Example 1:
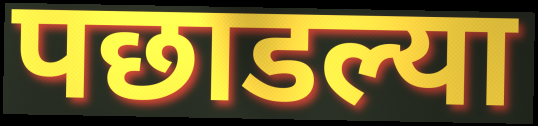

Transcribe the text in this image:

पछाडल्या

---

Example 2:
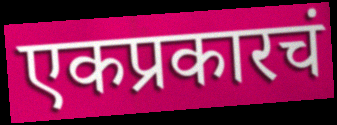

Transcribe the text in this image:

एकप्रकारचं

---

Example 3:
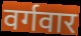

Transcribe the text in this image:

वर्गवार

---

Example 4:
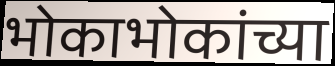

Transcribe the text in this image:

भोकाभोकांच्या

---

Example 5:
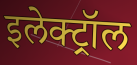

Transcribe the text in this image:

इलेक्ट्रॉल